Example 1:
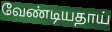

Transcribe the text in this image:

வேண்டியதாய்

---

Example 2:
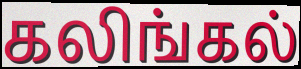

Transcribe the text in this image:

கலிங்கல்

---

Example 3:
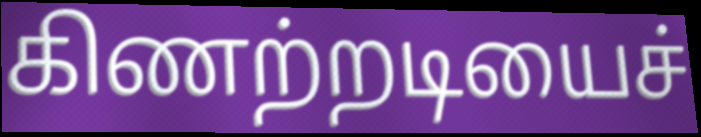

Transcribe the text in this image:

கிணற்றடியைச்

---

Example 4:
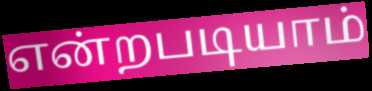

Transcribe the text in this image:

என்றபடியாம்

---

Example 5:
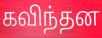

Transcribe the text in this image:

கவிந்தன